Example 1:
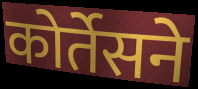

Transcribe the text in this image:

कोर्तेसने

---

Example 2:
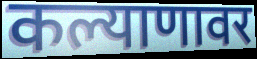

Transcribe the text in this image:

कल्याणावर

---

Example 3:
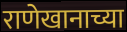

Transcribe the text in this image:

राणेखानाच्या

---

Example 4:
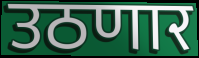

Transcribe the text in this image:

उठणार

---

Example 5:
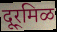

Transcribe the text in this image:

दूर्मिळ